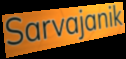
Sarvajanik